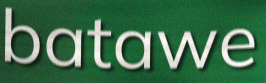
batawe